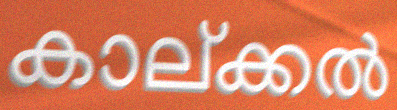
കാല്ക്കൽ